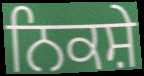
ਨਿਕਸ਼ੇ